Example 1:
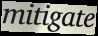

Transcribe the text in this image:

mitigate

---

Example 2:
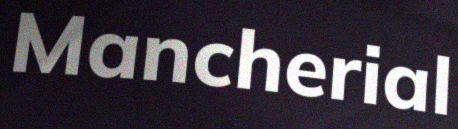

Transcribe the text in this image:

Mancherial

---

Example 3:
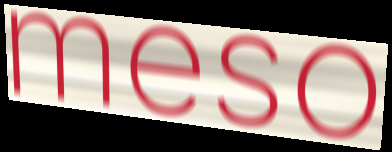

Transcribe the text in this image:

meso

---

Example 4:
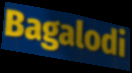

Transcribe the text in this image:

Bagalodi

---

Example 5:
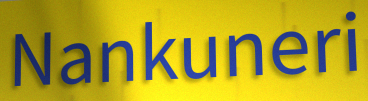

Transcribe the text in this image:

Nankuneri